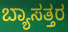
ಬ್ಯಾಸತ್ತರ